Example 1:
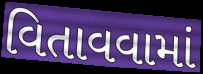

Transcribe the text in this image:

વિતાવવામાં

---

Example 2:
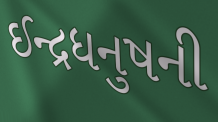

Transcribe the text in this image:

ઈન્દ્રધનુષની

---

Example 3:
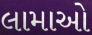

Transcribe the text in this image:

લામાઓ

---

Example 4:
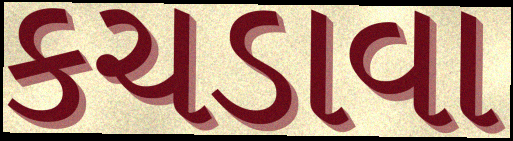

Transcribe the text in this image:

કચડાવા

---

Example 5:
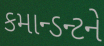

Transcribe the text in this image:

કમાન્ડન્ટને